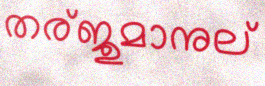
തര്ജുമാനുല്